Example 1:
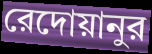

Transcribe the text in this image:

রেদোয়ানুর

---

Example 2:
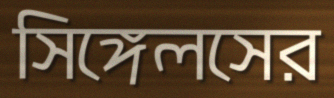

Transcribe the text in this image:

সিঙ্গেলসের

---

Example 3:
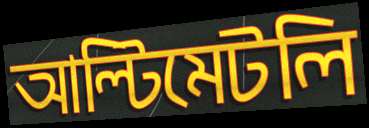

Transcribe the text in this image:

আল্টিমেটলি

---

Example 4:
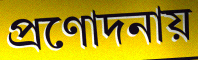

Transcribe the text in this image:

প্রণোদনায়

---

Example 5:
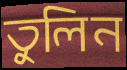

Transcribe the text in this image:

তুলিন